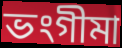
ভংগীমা